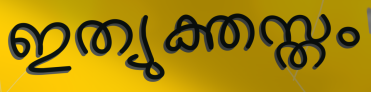
ഇത്യുക്തസ്തം